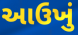
આઉખું